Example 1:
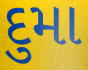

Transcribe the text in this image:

દુમા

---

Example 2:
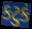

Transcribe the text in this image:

કટુકં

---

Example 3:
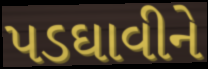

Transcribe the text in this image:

પડઘાવીને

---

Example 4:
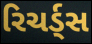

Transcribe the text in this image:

રિચર્ડ્સ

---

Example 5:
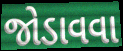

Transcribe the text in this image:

જોડાવવા